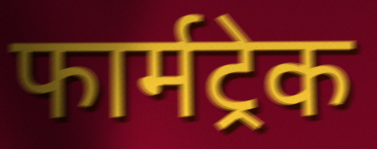
फार्मट्रेक